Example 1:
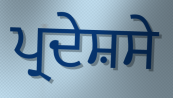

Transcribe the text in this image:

ਪ੍ਰਦੇਸ਼ਸੇ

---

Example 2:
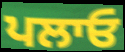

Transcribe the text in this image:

ਪਲਾਓ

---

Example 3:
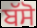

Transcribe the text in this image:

ਬੱਸੋ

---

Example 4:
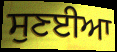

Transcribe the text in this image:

ਸੁਣਈਆ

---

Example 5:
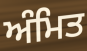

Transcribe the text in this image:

ਅੰਮਿਤ